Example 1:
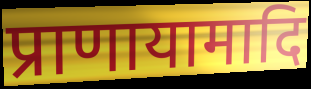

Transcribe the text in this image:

प्राणायामादि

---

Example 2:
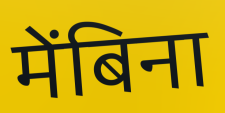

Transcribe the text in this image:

मेंबिना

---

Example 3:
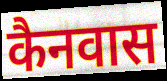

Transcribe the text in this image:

कैनवास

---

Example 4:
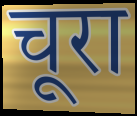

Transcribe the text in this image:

चूरा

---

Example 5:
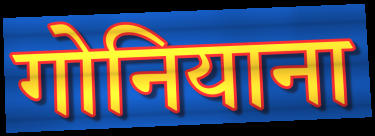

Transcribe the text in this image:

गोनियाना